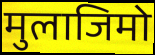
मुलाजिमो